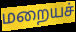
மறையச்